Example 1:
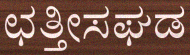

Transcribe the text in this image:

ಛತ್ತೀಸಘಡ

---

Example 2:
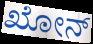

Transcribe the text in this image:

ಖೋನ್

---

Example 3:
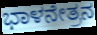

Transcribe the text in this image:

ಭಾಳನೇತ್ರನ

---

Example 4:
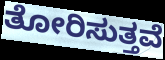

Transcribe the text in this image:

ತೋರಿಸುತ್ತವೆ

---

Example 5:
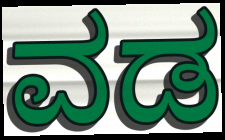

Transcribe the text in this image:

ವಡ